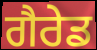
ਗੈਰੇਡ